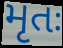
મૃતઃ